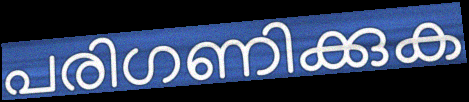
പരിഗണിക്കുക